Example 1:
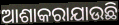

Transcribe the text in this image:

ଆଶାକରାଯାଉଛି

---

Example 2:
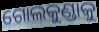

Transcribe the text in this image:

ଗୋଲକୁଣ୍ଡାକୁ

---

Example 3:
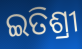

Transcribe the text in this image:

ଇତିଶ୍ରୀ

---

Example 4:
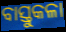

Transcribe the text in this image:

ବାସ୍ତୁକଳା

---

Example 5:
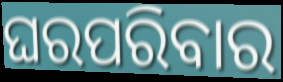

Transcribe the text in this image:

ଘରପରିବାର